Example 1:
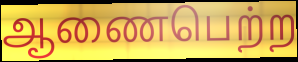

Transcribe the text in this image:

ஆணைபெற்ற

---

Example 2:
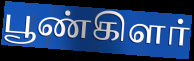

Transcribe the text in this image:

பூண்கிளர்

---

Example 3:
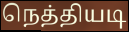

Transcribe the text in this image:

நெத்தியடி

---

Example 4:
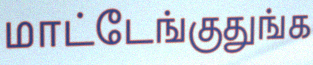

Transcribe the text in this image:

மாட்டேங்குதுங்க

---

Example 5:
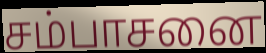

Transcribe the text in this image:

சம்பாசனை